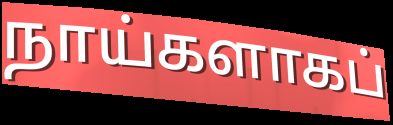
நாய்களாகப்